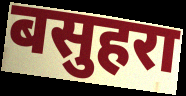
बसुहरा